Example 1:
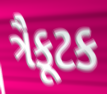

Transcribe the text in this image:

ત્રૈકૂટક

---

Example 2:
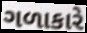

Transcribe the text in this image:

ગળાકારે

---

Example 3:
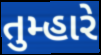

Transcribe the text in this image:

તુમ્હારે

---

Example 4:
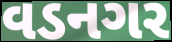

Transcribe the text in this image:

વડનગર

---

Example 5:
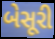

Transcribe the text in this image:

બેસૂરી